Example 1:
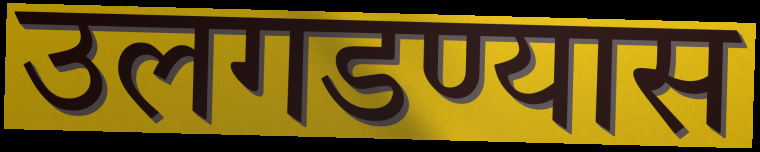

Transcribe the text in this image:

उलगडण्यास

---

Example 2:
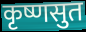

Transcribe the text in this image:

कृष्णसुत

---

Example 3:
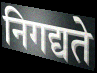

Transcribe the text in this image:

निगद्यते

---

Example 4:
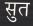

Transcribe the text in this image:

सुत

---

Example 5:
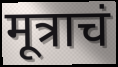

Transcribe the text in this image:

मूत्राचं